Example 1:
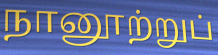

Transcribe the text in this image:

நானூற்றுப்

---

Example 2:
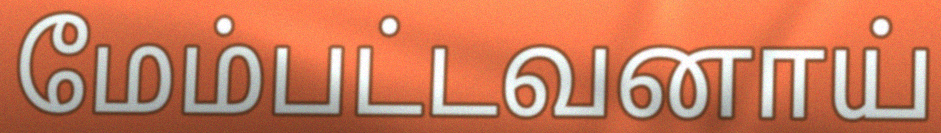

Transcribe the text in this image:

மேம்பட்டவனாய்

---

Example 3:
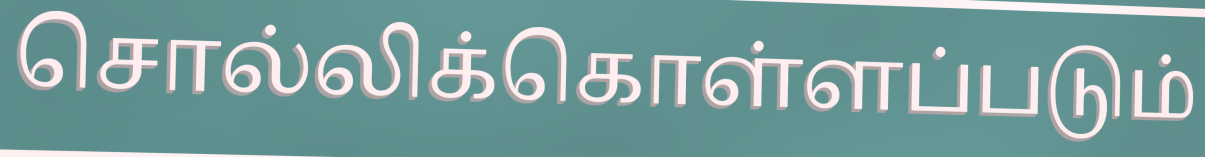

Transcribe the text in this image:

சொல்லிக்கொள்ளப்படும்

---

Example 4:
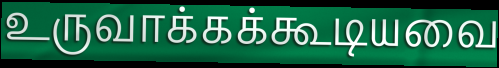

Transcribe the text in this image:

உருவாக்கக்கூடியவை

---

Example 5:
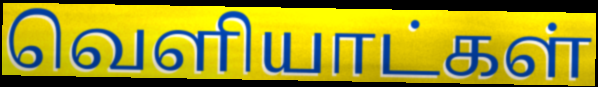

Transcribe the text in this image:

வெளியாட்கள்